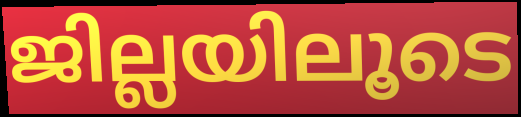
ജില്ലയിലൂടെ